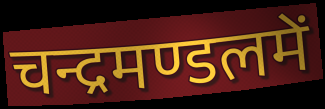
चन्द्रमण्डलमें